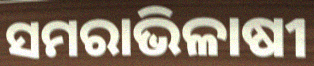
ସମରାଭିଳାଷୀ